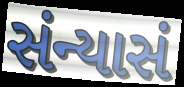
સંન્યાસં